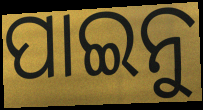
ପାଇନୁ